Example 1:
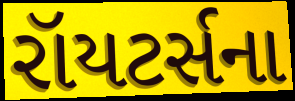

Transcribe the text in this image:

રૉયટર્સના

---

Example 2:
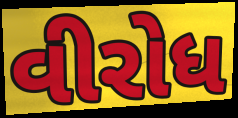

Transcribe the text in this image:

વીરોધ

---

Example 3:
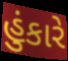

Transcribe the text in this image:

હુંકારે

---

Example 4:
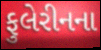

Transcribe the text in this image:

ફુલેરીનના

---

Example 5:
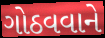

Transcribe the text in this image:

ગોઠવવાને